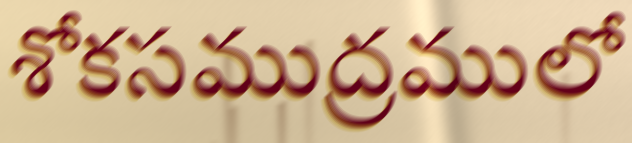
శోకసముద్రములో